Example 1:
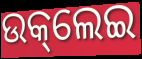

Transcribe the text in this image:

ଉକ୍‌ଲେଇ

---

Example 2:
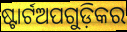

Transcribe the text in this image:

ଷ୍ଟାର୍ଟଅପଗୁଡ଼ିକର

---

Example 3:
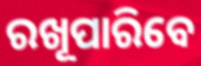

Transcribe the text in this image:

ରଖୂପାରିବେ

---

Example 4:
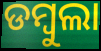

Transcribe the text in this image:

ଡମ୍ୱୁଲା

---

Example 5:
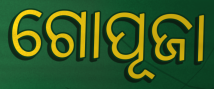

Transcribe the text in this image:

ଗୋପୂଜା